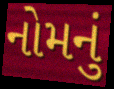
નોમનું